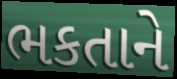
ભકતાને